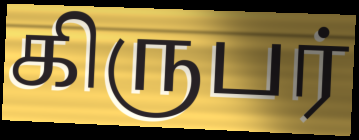
கிருபர்